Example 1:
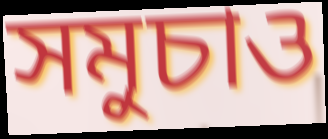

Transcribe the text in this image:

সমুচাও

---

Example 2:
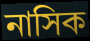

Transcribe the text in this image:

নাসিক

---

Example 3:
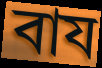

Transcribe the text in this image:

বায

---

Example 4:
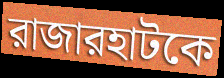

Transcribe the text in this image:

রাজারহাটকে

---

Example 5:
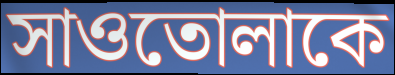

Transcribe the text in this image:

সাওতোলাকে